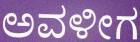
ಅವಳೀಗ